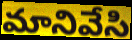
మానివేసి